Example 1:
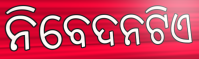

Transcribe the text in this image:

ନିବେଦନଟିଏ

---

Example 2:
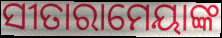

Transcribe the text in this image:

ସୀତାରାମେୟାଙ୍କ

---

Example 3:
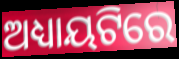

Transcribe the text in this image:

ଅଧ୍ୟାୟଟିରେ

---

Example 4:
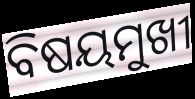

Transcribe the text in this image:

ବିଷୟମୁଖୀ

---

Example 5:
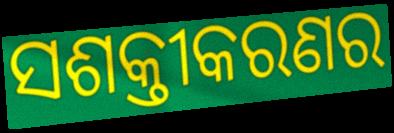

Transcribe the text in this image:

ସଶକ୍ତୀକରଣର